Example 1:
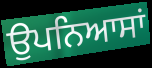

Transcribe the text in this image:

ਉਪਨਿਆਸਾਂ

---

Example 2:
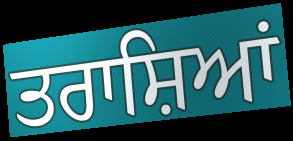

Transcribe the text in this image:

ਤਰਾਸ਼ਿਆਂ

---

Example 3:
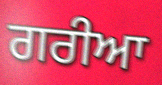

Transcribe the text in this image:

ਗਰੀਆ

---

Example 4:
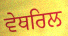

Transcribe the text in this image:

ਵੇਥਰਿਲ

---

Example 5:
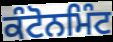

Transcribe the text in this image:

ਕੰਟੋਨਮਿੰਟ